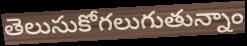
తెలుసుకోగలుగుతున్నాం